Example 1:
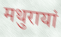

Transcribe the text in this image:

मथुरायां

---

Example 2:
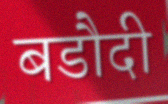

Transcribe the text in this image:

बडौदी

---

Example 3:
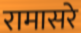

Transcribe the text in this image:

रामासरे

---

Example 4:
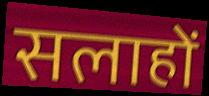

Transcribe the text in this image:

सलाहों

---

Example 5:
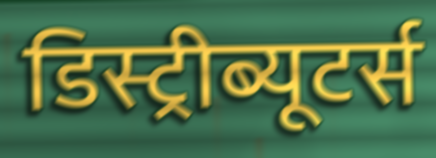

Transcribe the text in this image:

डिस्ट्रीब्यूटर्स